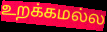
உறக்கமல்ல